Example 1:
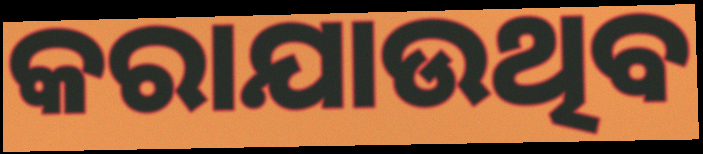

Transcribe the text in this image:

କରାଯାଉଥିବ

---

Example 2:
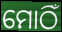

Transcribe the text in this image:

ମୋଠିଁ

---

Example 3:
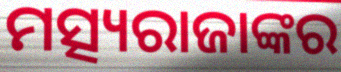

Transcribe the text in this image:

ମତ୍ସ୍ୟରାଜାଙ୍କର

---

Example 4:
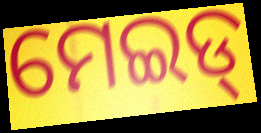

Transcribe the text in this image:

ମେଇଡ୍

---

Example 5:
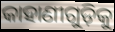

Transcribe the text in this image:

କାହାଣୀଗୁଡ଼ିକୁ